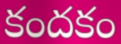
కందకం